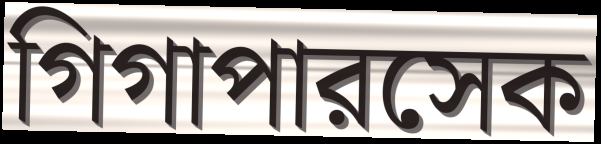
গিগাপারসেক